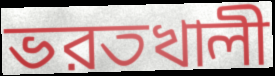
ভরতখালী